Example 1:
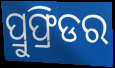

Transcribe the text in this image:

ପ୍ରୁଫ୍ରିଡର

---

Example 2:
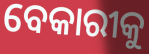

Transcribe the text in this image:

ବେକାରୀକୁ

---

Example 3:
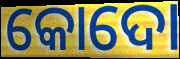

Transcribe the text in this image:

କୋଦୋ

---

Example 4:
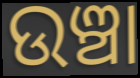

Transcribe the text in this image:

ଉଞ୍ଚା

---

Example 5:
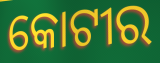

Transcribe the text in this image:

କୋଟୀର